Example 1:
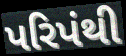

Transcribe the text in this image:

પરિપંથી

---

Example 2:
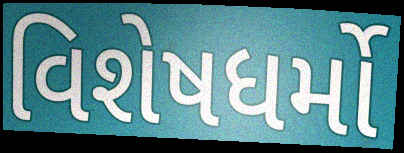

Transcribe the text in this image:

વિશેષધર્મો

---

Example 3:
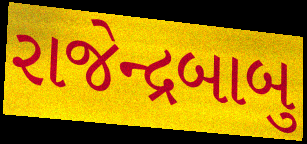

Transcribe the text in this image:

રાજેન્દ્રબાબુ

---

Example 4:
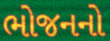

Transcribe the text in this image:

ભોજનનો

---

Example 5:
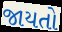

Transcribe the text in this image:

જાયતો